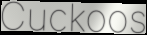
Cuckoos